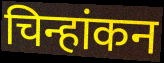
चिन्हांकन